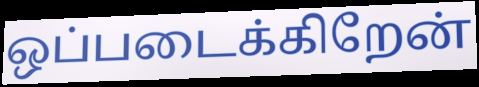
ஒப்படைக்கிறேன்